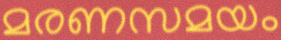
മരണസമയം